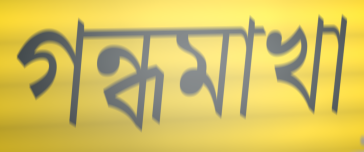
গন্ধমাখা